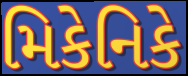
મિકેનિકે